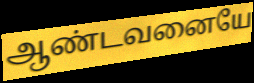
ஆண்டவனையே